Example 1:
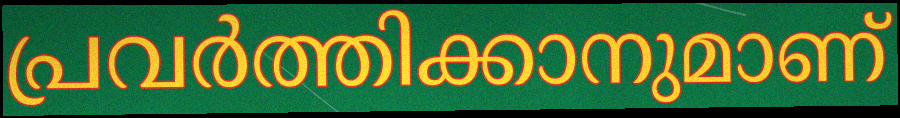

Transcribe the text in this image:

പ്രവർത്തിക്കാനുമാണ്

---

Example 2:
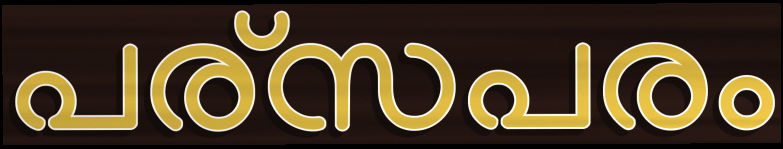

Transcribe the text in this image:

പര്സപരം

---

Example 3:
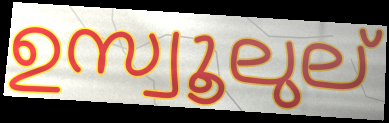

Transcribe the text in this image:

ഉസ്വൂലുല്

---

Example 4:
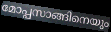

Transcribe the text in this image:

മോപ്പസാങ്ങിനെയും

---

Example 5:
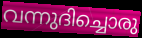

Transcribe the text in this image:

വന്നുദിച്ചൊരു